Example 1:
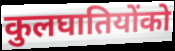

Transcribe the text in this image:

कुलघातियोंको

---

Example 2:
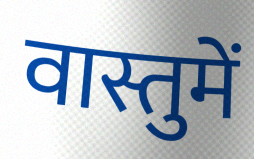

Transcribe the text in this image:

वास्तुमें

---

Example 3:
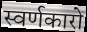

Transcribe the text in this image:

स्वर्णकारो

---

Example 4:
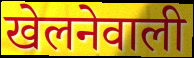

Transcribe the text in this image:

खेलनेवाली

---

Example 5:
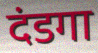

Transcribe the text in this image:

दंडगा